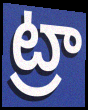
ట్రా